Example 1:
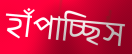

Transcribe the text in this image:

হাঁপাচ্ছিস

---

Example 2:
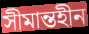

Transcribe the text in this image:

সীমান্তহীন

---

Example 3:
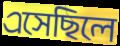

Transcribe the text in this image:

এসেছিলে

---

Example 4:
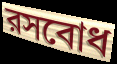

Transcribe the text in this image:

রসবোধ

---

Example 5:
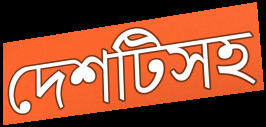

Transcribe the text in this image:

দেশটিসহ